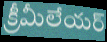
క్రీమీలేయర్